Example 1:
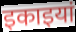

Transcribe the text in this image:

इकाइयां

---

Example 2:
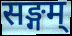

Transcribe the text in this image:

सङ्गम्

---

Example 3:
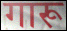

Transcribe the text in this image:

गारू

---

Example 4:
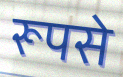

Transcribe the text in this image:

रूपसे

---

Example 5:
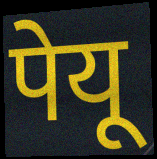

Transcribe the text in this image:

पेयू